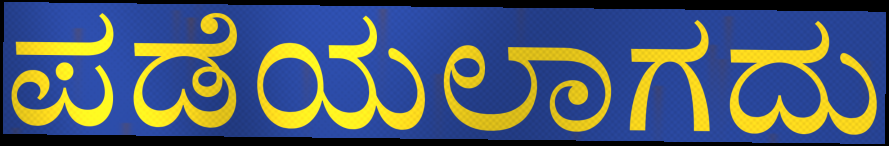
ಪಡೆಯಲಾಗದು